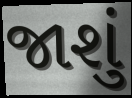
જાશું